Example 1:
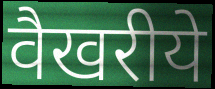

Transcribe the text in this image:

वैखरीये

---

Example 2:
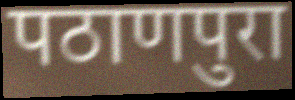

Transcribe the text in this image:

पठाणपुरा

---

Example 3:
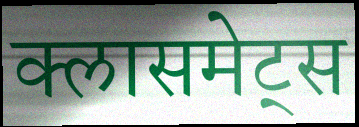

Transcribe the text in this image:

क्लासमेट्स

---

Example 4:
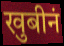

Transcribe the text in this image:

खुबीनं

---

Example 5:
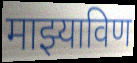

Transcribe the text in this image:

माझ्याविण